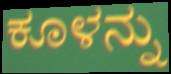
ಕೂಳನ್ನು